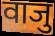
वाजु